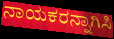
ನಾಯಕರನ್ನಾಗಿಸಿ